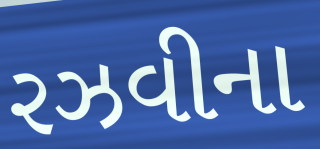
રઝવીના